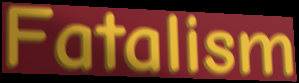
Fatalism